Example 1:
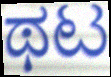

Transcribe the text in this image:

ಥಟ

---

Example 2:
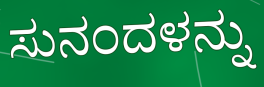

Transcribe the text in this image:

ಸುನಂದಳನ್ನು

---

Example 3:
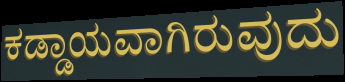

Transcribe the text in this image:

ಕಡ್ಡಾಯವಾಗಿರುವುದು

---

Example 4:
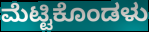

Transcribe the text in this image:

ಮೆಟ್ಟಿಕೊಂಡಳು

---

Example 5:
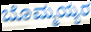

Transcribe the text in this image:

ಬೊಮ್ಮಯ್ಯರ